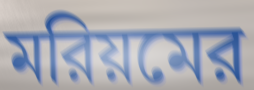
মরিয়মের